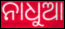
ନାଧୁଆ